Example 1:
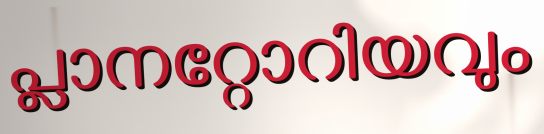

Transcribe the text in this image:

പ്ലാനറ്റോറിയവും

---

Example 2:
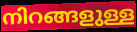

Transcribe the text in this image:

നിറങ്ങളുള്ള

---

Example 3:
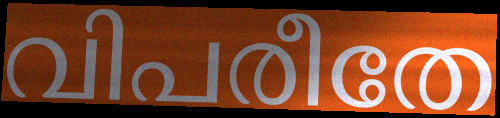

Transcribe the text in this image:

വിപരീതേ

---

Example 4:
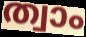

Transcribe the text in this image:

ത്വാം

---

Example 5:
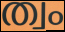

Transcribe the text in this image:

ത്വം